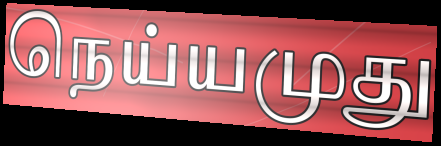
நெய்யமுது